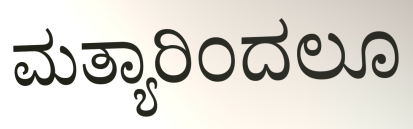
ಮತ್ಯಾರಿಂದಲೂ